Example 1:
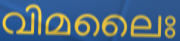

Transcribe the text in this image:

വിമലൈഃ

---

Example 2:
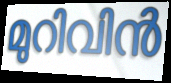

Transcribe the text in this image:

മുറിവിൻ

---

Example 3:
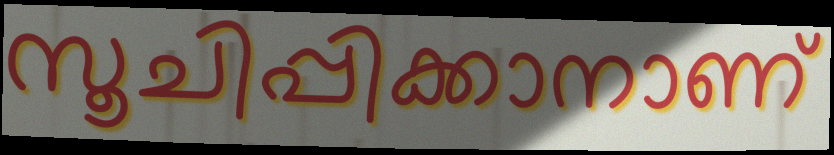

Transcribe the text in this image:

സൂചിപ്പിക്കാനാണ്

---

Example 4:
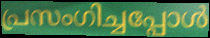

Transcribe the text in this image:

പ്രസംഗിച്ചപ്പോൾ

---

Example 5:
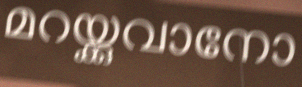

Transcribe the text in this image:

മറയ്ക്കുവാനോ